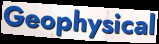
Geophysical